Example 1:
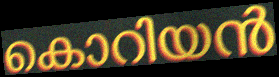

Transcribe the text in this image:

കൊറിയൻ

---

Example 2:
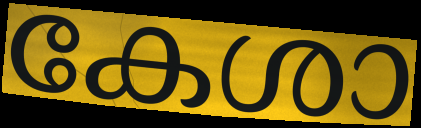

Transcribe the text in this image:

കേശാ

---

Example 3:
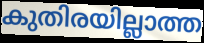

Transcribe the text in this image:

കുതിരയില്ലാത്ത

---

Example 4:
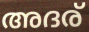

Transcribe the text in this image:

അദര്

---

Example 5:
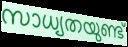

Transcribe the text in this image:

സാധ്യതയുണ്ട്